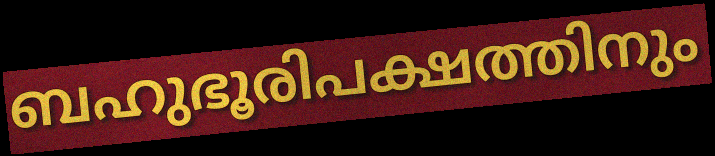
ബഹുഭൂരിപക്ഷത്തിനും